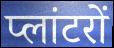
प्लांटरों